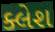
ક્લેશ